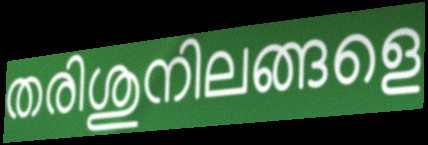
തരിശുനിലങ്ങളെ